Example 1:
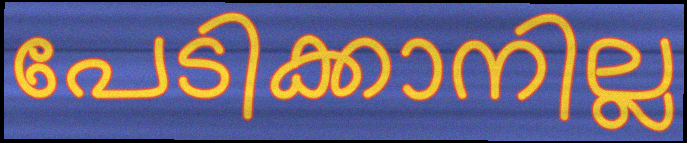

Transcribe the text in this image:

പേടിക്കാനില്ല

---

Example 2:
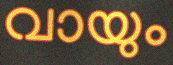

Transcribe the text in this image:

വായും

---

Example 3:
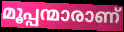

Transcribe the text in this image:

മൂപ്പന്മാരാണ്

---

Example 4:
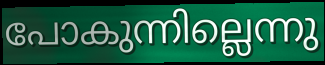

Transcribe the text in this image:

പോകുന്നില്ലെന്നു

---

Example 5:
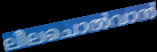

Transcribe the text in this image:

ലീലചൊൽവാൻ